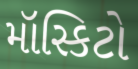
મૉસ્કિટો